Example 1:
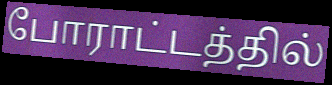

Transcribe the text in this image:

போராட்டத்தில்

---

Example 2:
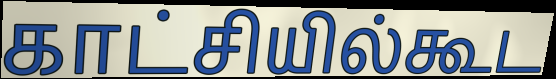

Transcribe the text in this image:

காட்சியில்கூட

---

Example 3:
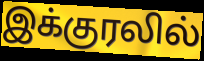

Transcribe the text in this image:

இக்குரலில்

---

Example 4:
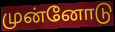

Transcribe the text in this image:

முன்னோடு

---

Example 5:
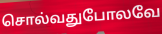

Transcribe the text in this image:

சொல்வதுபோலவே